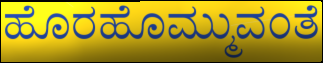
ಹೊರಹೊಮ್ಮುವಂತೆ